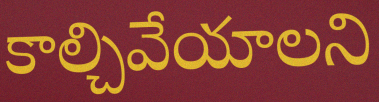
కాల్చివేయాలని